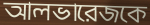
আলভারেজকে